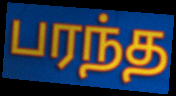
பரந்த